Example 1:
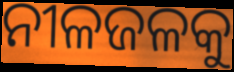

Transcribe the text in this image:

ନୀଳଜଳକୁ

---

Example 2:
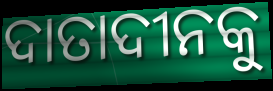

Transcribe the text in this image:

ଦାତାଦୀନକୁ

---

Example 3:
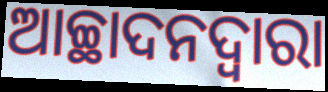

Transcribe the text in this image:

ଆଚ୍ଛାଦନଦ୍ୱାରା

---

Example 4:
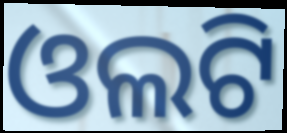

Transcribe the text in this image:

ଓଲଟି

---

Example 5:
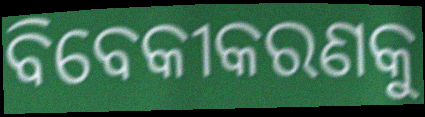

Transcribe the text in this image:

ବିବେକୀକରଣକୁ